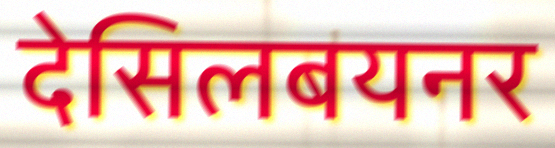
देसिलबयनर